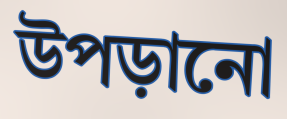
উপড়ানো